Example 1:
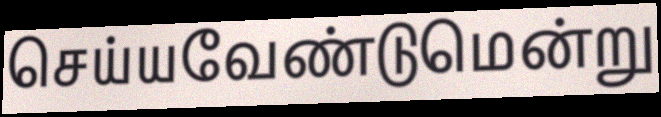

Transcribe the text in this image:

செய்யவேண்டுமென்று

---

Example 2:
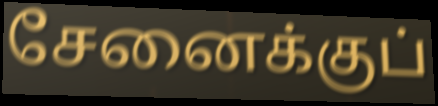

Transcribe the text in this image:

சேனைக்குப்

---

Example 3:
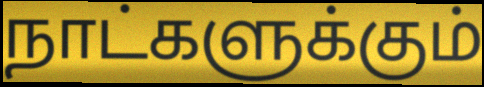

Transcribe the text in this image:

நாட்களுக்கும்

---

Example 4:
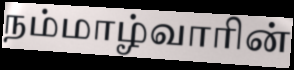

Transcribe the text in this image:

நம்மாழ்வாரின்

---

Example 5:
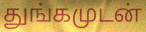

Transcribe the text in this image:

துங்கமுடன்